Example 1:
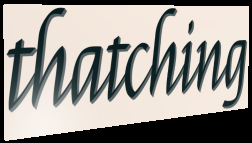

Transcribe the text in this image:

thatching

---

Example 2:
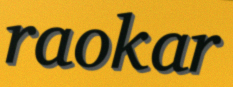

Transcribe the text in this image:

raokar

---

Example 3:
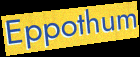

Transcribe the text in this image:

Eppothum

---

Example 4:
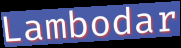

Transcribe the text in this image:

Lambodar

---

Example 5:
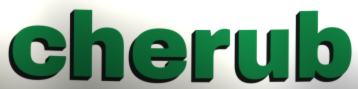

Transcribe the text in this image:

cherub